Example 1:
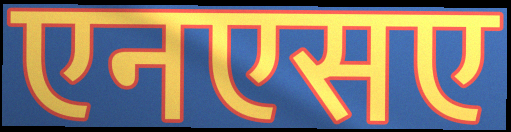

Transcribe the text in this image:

एनएसए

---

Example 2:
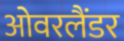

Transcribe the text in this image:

ओवरलैंडर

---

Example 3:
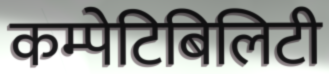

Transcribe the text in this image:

कम्पेटिबिलिटी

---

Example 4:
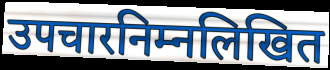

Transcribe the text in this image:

उपचारनिम्नलिखित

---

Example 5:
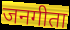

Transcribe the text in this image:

जनगीता